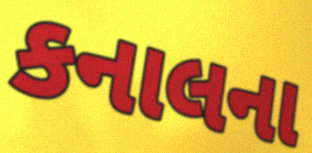
કનાલના